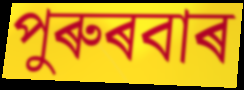
পুৰুৰবাৰ